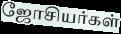
ஜோசியர்கள்